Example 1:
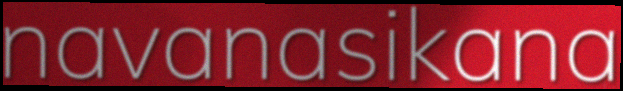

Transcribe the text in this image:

navanasikana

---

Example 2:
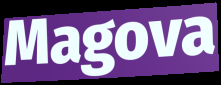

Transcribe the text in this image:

Magova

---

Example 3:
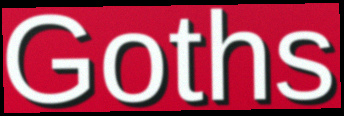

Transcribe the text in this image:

Goths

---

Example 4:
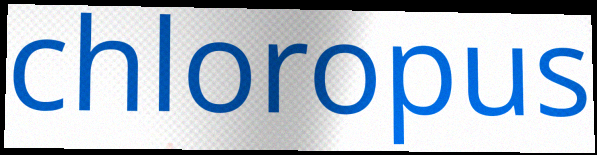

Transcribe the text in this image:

chloropus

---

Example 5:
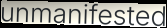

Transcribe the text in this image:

unmanifested